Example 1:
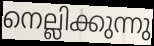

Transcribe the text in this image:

നെല്ലിക്കുന്നു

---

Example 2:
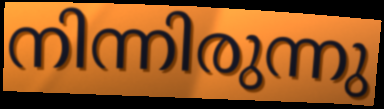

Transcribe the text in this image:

നിന്നിരുന്നു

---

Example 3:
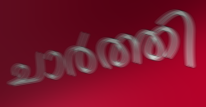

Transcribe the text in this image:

ചാർത്തി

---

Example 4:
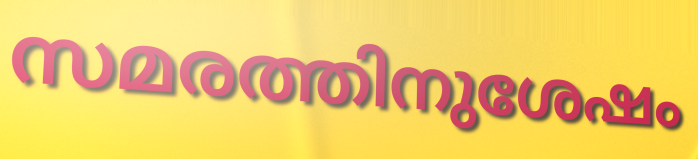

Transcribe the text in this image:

സമരത്തിനുശേഷം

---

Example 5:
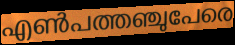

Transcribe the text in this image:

എൺപത്തഞ്ചുപേരെ